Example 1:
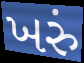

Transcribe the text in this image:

ખરું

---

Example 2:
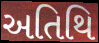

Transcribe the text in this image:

અતિથિ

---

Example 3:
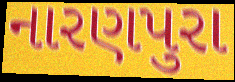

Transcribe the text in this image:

નારણપુરા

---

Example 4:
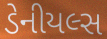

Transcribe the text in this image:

ડેનીયલ્સ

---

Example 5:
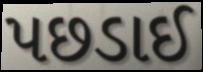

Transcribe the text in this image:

પછડાઈ